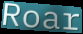
Roar